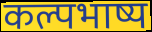
कल्पभाष्य